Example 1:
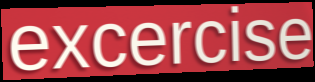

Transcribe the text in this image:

excercise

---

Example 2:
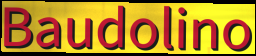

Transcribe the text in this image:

Baudolino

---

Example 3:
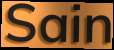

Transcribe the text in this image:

Sain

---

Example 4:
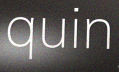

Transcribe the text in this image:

quin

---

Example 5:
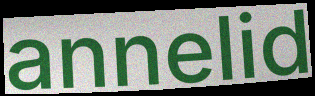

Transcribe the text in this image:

annelid